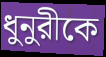
ধুনুরীকে